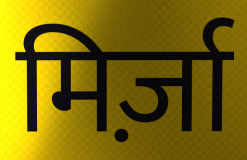
मिर्ज़ा